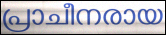
പ്രാചീനരായ